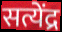
सत्येंद्र